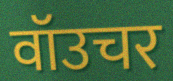
वॉउचर